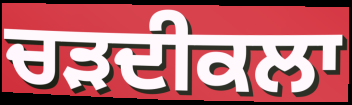
ਚੜਦੀਕਲਾ